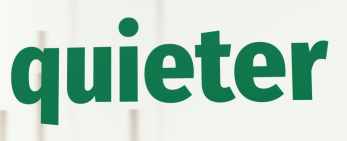
quieter